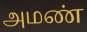
அமண்